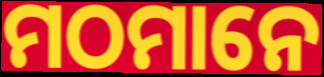
ମଠମାନେ